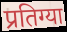
प्रतिग्या